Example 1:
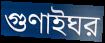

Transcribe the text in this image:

গুণাইঘর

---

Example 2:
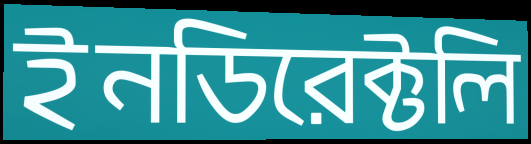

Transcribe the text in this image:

ইনডিরেক্টলি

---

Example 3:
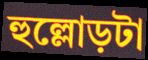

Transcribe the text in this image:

হুল্লোড়টা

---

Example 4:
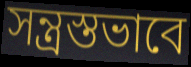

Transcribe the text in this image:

সন্ত্রস্তভাবে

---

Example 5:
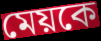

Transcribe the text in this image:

মেয়কে